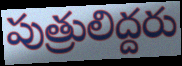
పుత్రులిద్దరు